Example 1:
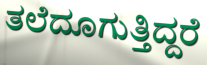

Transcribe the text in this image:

ತಲೆದೂಗುತ್ತಿದ್ದರೆ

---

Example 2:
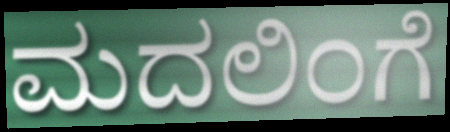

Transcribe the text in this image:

ಮದಲಿಂಗೆ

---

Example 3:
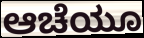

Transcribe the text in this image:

ಆಚೆಯೂ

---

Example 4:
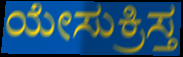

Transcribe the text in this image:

ಯೇಸುಕ್ರಿಸ್ತ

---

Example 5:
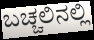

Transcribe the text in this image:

ಬಚ್ಚಲಿನಲ್ಲಿ